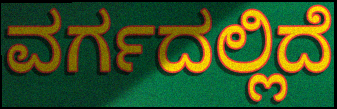
ವರ್ಗದಲ್ಲಿದೆ